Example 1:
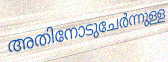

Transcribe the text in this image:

അതിനോടുചേർന്നുള്ള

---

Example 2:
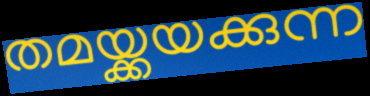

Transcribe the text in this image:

തമയ്ക്കയക്കുന്ന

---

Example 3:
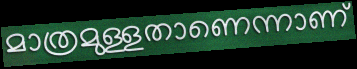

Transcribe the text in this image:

മാത്രമുള്ളതാണെന്നാണ്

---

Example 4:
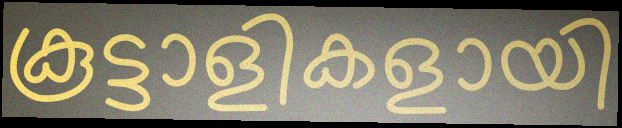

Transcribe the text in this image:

കൂട്ടാളികളായി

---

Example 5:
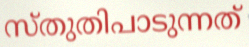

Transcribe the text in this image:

സ്തുതിപാടുന്നത്